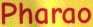
Pharao